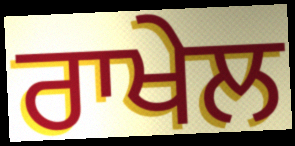
ਰਾਖੇਲ